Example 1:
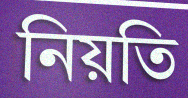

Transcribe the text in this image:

নিয়তি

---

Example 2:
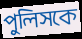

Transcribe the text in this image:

পুলিসকে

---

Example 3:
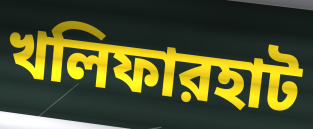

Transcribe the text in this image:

খলিফারহাট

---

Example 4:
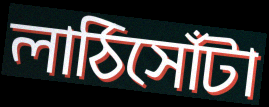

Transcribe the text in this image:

লাঠিসোঁটা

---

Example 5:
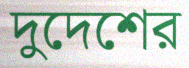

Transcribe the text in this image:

দুদেশের